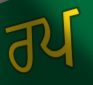
ਰਪ